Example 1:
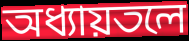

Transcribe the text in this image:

অধ্যায়তলে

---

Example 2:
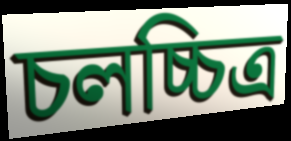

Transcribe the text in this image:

চলচ্চিত্র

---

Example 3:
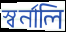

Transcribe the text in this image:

স্বর্নালি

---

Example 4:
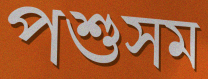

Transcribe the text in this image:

পশুসম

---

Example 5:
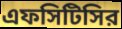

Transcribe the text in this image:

এফসিটিসির